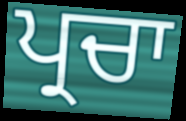
ਪ੍ਰਚਾ